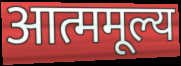
आत्ममूल्य